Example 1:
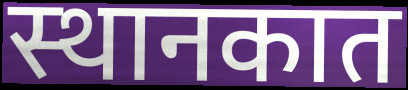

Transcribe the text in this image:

स्थानकात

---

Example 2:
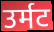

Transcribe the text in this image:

उर्मट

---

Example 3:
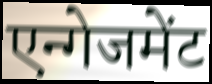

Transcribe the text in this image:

एन्गेजमेंट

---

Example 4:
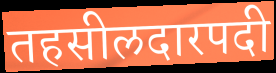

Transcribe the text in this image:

तहसीलदारपदी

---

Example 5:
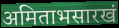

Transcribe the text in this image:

अमिताभसारखं